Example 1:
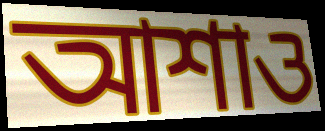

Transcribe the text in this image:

আশাও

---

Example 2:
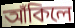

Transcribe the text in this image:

আঁকিলে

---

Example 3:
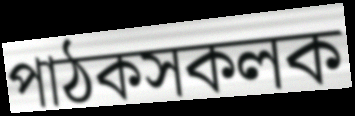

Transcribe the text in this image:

পাঠকসকলক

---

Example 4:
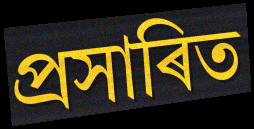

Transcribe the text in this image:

প্ৰসাৰিত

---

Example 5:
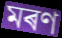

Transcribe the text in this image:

মৰণ